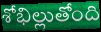
శోభిల్లుతోంది